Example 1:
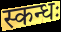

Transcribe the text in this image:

स्कन्धः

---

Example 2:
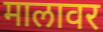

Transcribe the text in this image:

मालावर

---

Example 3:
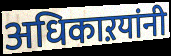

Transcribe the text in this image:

अधिकाऱयांनी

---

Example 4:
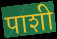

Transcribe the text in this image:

पाशी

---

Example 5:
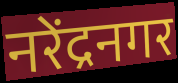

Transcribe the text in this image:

नरेंद्रनगर